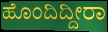
ಹೊಂದಿದ್ದೀರಾ